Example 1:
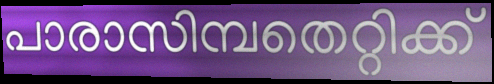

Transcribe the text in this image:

പാരാസിമ്പതെറ്റിക്ക്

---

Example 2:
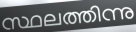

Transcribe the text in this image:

സ്ഥലത്തിന്നു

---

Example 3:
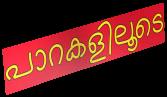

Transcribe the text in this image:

പാറകളിലൂടെ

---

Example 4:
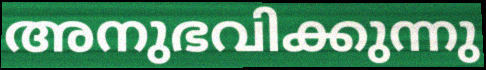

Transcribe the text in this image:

അനുഭവിക്കുന്നു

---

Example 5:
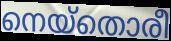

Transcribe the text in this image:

നെയ്തൊരീ